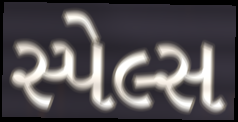
સ્પેલ્સ